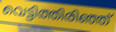
വെട്ടിത്തിരിഞ്ഞ്